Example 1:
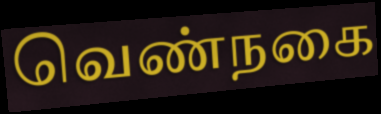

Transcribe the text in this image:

வெண்நகை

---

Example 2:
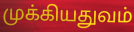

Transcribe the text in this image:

முக்கியதுவம்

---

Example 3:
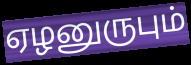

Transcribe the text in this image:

ஏழனுருபும்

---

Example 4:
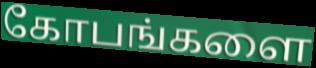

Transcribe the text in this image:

கோபங்களை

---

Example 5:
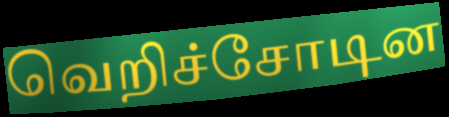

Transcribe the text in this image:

வெறிச்சோடின